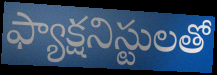
ఫ్యాక్షనిస్టులతో